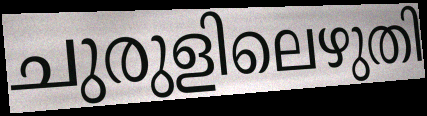
ചുരുളിലെഴുതി